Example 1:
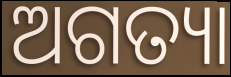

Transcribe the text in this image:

ଅଗତ୍ୟା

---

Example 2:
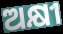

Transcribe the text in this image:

ଅକ୍ଷୀ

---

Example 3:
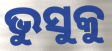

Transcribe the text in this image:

ଭୁସୁକୁ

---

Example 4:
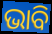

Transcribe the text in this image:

ଭାବି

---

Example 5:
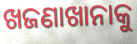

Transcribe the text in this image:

ଖଜଣାଖାନାକୁ